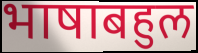
भाषाबहुल